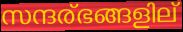
സന്ദര്ഭങ്ങളില്